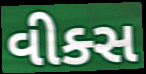
વીક્સ